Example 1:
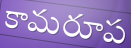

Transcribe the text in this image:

కామరూప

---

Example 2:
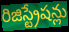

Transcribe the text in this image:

రిజిస్ట్రేషన్లు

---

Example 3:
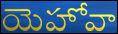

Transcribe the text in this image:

యెహోవా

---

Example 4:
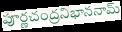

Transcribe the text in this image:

పూర్ణచంద్రనిభాననామ్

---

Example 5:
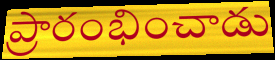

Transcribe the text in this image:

ప్రారంభించాడు